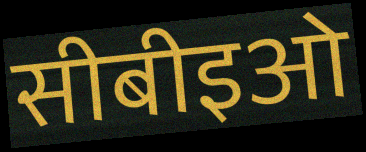
सीबीइओ